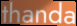
thanda